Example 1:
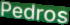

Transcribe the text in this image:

Pedros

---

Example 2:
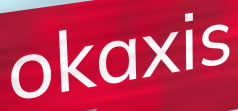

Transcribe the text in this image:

okaxis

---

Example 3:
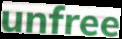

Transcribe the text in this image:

unfree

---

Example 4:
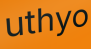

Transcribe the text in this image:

uthyo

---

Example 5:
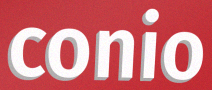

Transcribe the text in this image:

conio